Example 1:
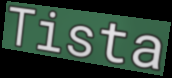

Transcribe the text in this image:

Tista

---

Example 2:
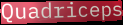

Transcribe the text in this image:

Quadriceps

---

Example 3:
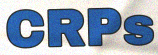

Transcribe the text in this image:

CRPs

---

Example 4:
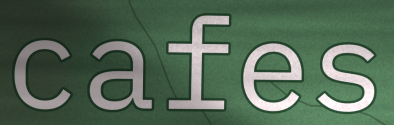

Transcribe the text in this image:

cafes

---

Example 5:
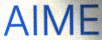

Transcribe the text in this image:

AIME